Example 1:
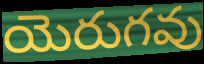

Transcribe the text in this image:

యెరుగవు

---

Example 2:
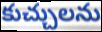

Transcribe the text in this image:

కుచ్చులను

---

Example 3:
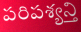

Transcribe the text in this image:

పరిపశ్యన్తి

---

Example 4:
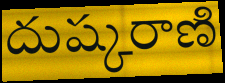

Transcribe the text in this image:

దుష్కరాణి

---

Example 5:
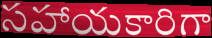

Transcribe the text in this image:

సహాయకారిగా